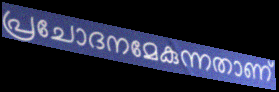
പ്രചോദനമേകുന്നതാണ്